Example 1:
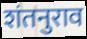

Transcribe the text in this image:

शंतनुराव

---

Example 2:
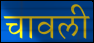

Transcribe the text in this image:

चावली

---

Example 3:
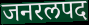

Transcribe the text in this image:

जनरलपद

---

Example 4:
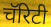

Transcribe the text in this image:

चॅरिटी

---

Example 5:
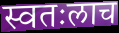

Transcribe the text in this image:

स्वतःलाच